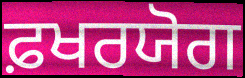
ਫ਼ਖਰਯੋਗ